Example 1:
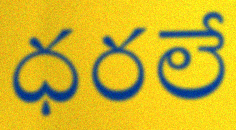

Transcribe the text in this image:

ధరలే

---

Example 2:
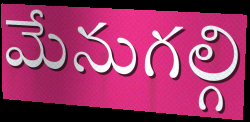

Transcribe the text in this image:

మేనుగల్గి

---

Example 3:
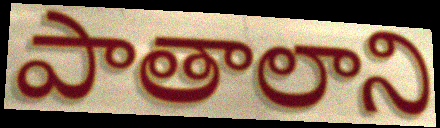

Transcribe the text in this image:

పాతాలాని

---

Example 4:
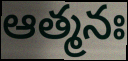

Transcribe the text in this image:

ఆత్మనః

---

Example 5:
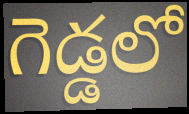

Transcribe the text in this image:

గెడ్డలో